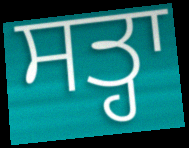
ਸਤ੍ਹਾ